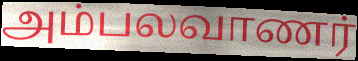
அம்பலவாணர்